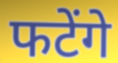
फटेंगे